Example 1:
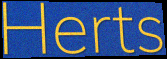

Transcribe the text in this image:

Herts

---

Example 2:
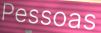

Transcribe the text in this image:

Pessoas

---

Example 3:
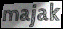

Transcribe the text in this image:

majak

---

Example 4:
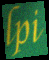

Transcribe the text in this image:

lpi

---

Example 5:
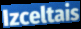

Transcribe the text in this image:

Izceltais